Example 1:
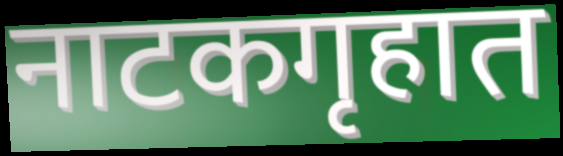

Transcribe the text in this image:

नाटकगृहात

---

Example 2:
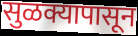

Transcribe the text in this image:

सुळक्यापासून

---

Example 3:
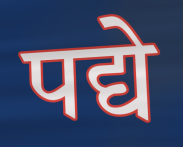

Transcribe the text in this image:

पद्ये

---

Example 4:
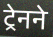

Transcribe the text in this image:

ट्रेनने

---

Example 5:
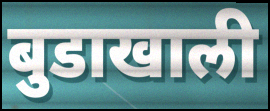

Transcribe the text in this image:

बुडाखाली